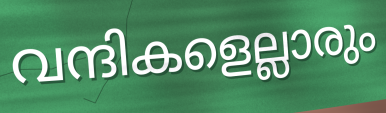
വന്ദികളെല്ലാരും